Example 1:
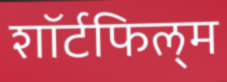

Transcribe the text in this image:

शॉर्टफिल्म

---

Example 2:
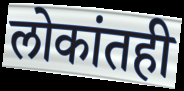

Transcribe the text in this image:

लोकांतही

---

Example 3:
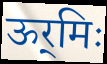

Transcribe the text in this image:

ऊर्मिः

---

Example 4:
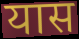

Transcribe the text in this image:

यास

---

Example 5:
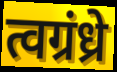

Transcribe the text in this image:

त्वग्रंध्रे